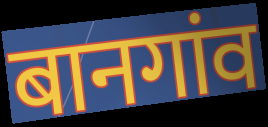
बानगांव